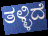
ತಳ್ಳಿದೆ